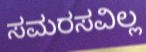
ಸಮರಸವಿಲ್ಲ